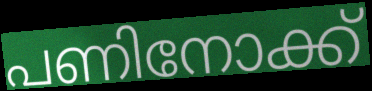
പണിനോക്ക്